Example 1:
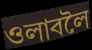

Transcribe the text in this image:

ওলাবলৈ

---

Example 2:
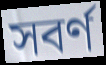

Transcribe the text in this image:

সবৰ্ণ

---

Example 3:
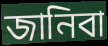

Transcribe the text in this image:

জানিবা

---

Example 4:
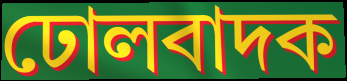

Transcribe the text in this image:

ঢোলবাদক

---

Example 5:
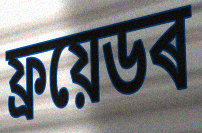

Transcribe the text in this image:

ফ্ৰয়েডৰ